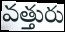
వత్తురు